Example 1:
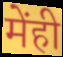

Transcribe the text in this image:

मेंही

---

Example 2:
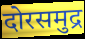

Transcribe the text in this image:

दोरसमुद्र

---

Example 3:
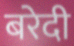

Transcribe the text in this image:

बरेदी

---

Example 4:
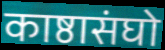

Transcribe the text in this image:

काष्ठासंघो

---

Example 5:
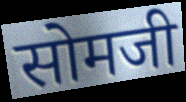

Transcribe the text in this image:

सोमजी